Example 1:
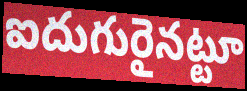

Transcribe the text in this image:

ఐదుగురైనట్టూ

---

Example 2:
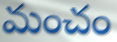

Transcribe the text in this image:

మంచం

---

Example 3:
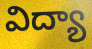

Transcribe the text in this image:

విద్యా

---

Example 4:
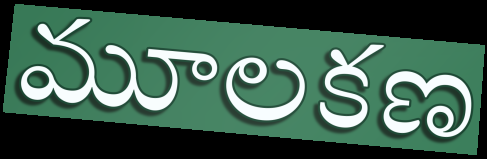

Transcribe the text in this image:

మూలకణ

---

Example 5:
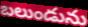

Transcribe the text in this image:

బలుండును